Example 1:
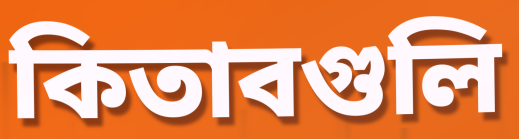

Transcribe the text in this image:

কিতাবগুলি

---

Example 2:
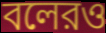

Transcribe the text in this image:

বলেরও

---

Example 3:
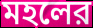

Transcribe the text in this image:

মহলের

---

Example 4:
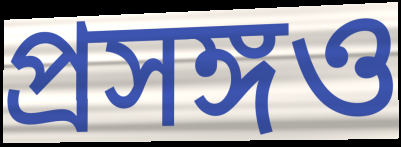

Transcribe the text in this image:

প্রসঙ্গও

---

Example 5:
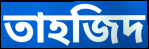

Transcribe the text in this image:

তাহজিদ